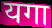
यगा